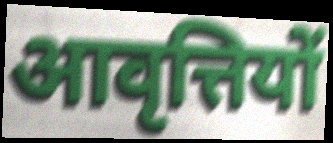
आवृत्तियों